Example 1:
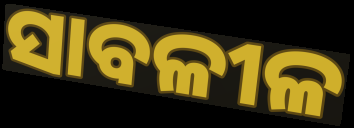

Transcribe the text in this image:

ସାବଳୀଳ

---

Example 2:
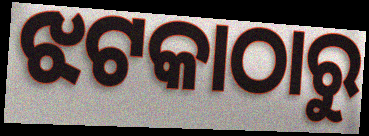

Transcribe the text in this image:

ଝଟକାଠାରୁ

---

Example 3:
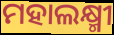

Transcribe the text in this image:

ମହାଲକ୍ଷ୍ମୀ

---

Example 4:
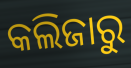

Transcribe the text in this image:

କଲିଜାରୁ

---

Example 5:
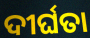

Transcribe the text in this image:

ଦୀର୍ଘତା